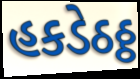
હકડેઠઠ્ઠ